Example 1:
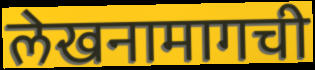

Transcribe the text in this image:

लेखनामागची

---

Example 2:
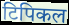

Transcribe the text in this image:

टिपिकल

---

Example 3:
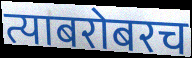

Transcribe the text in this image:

त्याबरोबरच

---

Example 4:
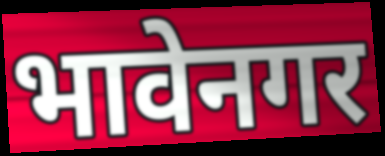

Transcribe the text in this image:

भावेनगर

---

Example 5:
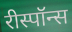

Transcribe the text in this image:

रीस्पॉन्स